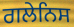
ਗਲੇਨਿਸ